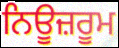
ਨਿਊਜ਼ਰੂਮ